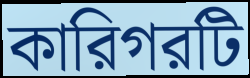
কারিগরটি